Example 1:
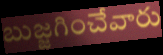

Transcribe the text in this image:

బుజ్జగించేవారు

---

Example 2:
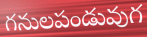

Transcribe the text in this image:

గనులపండువుగ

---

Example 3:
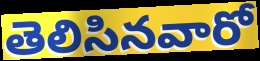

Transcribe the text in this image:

తెలిసినవారో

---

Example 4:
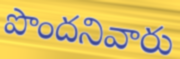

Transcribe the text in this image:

పొందనివారు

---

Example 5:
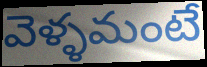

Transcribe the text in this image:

వెళ్ళమంటే